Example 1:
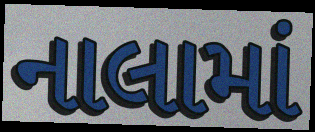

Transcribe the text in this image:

નાલામાં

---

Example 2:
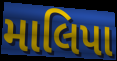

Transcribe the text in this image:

માલિપા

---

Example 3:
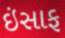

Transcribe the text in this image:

ઇંસાફ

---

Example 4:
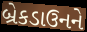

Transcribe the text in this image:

બ્રેકડાઉનને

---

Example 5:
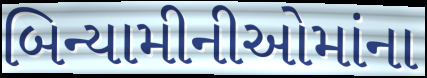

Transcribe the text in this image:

બિન્યામીનીઓમાંના